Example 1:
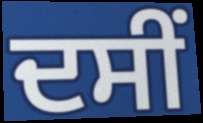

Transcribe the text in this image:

ਦਸੀਂ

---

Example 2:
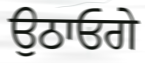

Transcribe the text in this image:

ਉਠਾਓਗੇ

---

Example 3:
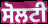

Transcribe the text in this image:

ਸੋਲਟੀ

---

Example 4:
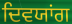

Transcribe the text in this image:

ਦਿਵਯਾਂਗ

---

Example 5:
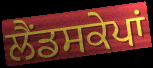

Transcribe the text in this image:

ਲੈਂਡਸਕੇਪਾਂ